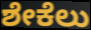
ಶೇಕೆಲು